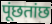
पूंछतांछ